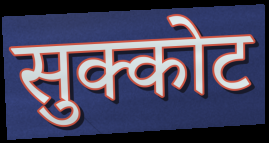
सुक्कोट